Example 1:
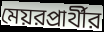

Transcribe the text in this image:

মেয়রপ্রার্থীর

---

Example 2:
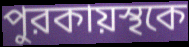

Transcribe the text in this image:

পুরকায়স্থকে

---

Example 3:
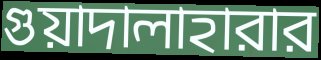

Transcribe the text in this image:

গুয়াদালাহারার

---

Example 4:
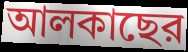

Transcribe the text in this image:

আলকাছের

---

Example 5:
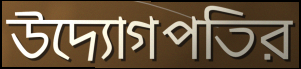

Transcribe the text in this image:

উদ্যোগপতির